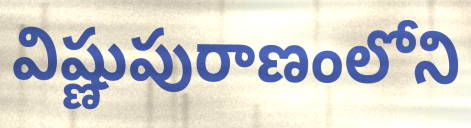
విష్ణుపురాణంలోని